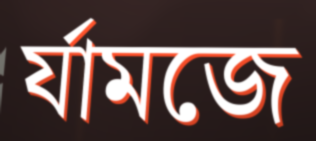
র্যামজে